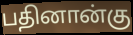
பதினான்கு